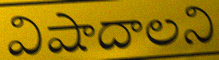
విషాదాలని